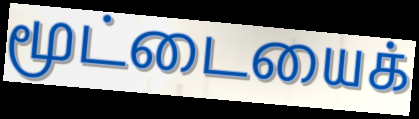
மூட்டையைக்